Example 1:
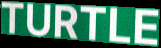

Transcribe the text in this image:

TURTLE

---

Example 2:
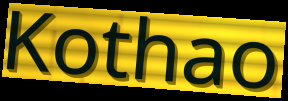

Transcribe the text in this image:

Kothao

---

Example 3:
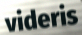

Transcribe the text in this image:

videris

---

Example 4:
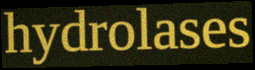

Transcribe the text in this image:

hydrolases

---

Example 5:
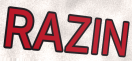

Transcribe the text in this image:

RAZIN